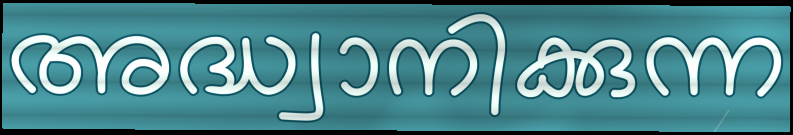
അദ്ധ്വാനിക്കുന്ന